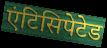
एंटिसिपेटेड